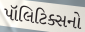
પૉલિટિક્સનો